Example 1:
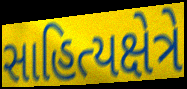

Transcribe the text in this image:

સાહિત્યક્ષેત્રે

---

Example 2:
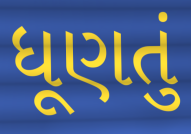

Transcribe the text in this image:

ધૂણતું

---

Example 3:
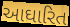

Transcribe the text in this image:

આઘારિત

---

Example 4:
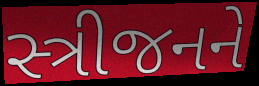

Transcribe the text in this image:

સ્ત્રીજનને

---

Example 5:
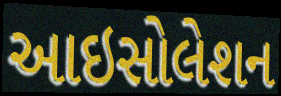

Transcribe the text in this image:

આઇસોલેશન